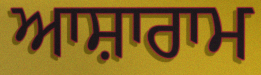
ਆਸ਼ਾਰਾਮ